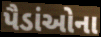
પૈડાંઓના